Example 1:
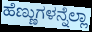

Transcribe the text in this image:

ಹೆಣ್ಣುಗಳನ್ನೆಲ್ಲಾ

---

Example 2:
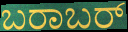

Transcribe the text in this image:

ಬರಾಬರ್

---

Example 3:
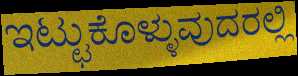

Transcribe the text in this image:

ಇಟ್ಟುಕೊಳ್ಳುವುದರಲ್ಲಿ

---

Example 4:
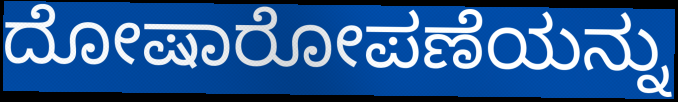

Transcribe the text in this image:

ದೋಷಾರೋಪಣೆಯನ್ನು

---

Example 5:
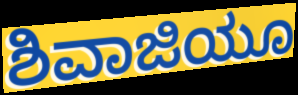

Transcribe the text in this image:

ಶಿವಾಜಿಯೂ